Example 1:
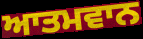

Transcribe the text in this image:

ਆਤਮਵਾਨ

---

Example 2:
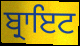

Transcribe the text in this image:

ਬ੍ਰਾਇਟ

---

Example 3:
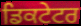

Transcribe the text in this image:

ਡਿਕਟੇਟਰ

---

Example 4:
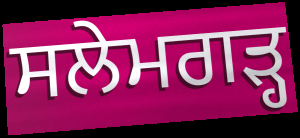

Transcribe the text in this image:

ਸਲੇਮਗੜ੍ਹ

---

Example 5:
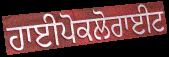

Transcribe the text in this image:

ਹਾਈਪੋਕਲੋਰਾਈਟ